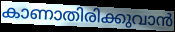
കാണാതിരിക്കുവാൻ